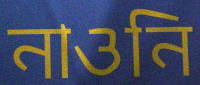
নাওনি